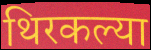
थिरकल्या